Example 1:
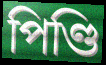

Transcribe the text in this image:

পিণ্ডি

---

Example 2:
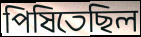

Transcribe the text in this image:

পিষিতেছিল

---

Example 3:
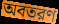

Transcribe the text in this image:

অবতরণ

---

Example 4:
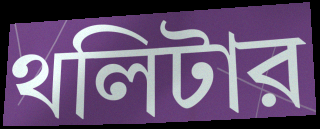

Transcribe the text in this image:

থলিটার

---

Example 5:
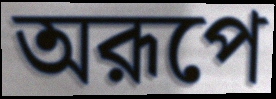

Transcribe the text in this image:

অরূপে